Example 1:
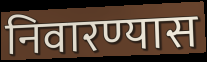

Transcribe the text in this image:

निवारण्यास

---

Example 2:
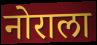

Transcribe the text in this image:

नोराला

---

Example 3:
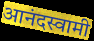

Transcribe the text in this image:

आनंदस्वामी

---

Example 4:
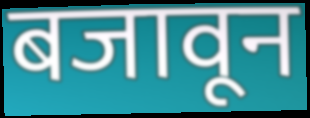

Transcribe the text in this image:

बजावून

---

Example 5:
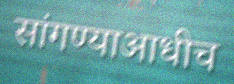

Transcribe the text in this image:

सांगण्याआधीच